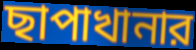
ছাপাখানার